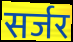
सर्जर